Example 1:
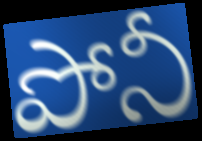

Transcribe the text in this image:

పోనీ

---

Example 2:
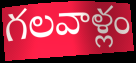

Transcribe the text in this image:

గలవాళ్లం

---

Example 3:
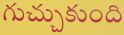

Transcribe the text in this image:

గుచ్చుకుంది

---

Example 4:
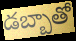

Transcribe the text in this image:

డబ్బాతో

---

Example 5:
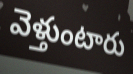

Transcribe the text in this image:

వెళ్తుంటారు